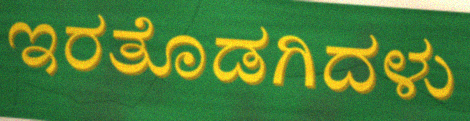
ಇರತೊಡಗಿದಳು